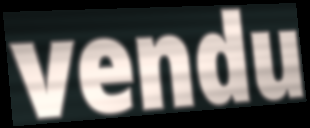
vendu